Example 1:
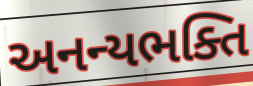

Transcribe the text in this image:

અનન્યભક્તિ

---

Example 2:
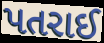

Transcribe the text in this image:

પતરાઈ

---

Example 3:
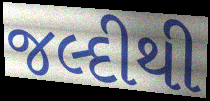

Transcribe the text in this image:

જલ્દીથી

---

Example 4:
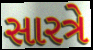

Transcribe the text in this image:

સારત્રે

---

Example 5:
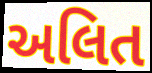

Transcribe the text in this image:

અલિત